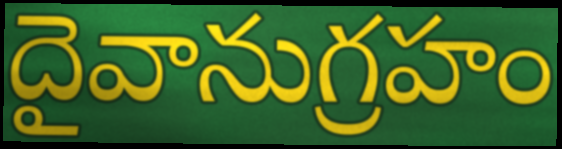
దైవానుగ్రహం